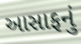
આસાફનું